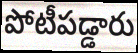
పోటీపడ్డారు